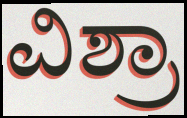
ವಿಶ್ರಾ